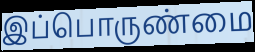
இப்பொருண்மை